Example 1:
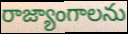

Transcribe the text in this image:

రాజ్యాంగాలను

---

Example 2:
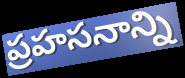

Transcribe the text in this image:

ప్రహసనాన్ని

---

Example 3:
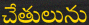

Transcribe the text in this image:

చేతులును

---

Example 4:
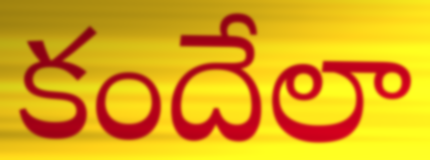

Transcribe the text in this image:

కందేలా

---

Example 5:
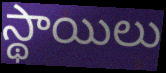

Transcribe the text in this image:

స్థాయిలు